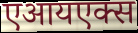
एआयएक्स